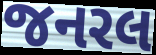
જનરલ